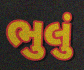
ભુલું